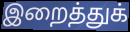
இறைத்துக்